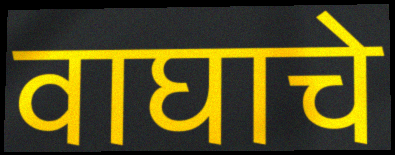
वाघाचे